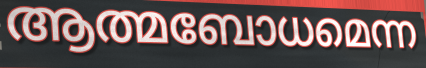
ആത്മബോധമെന്ന